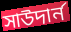
সাউদার্ন